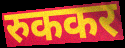
रुककर